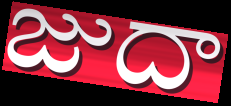
జుదా